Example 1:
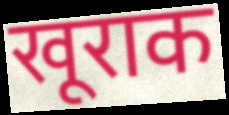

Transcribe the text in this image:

खूराक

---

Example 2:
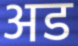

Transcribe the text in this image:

अड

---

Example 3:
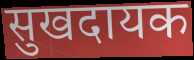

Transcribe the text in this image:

सुखदायक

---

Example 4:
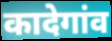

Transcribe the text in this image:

कादेगांव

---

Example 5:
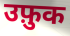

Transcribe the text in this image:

उफ़ुक